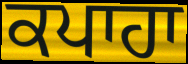
ਕਪਾਹਾ